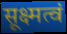
सूक्ष्मत्वं